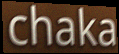
chaka